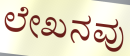
ಲೇಖನವು